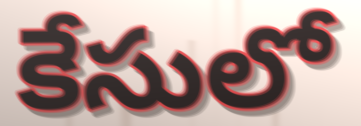
కేసులో